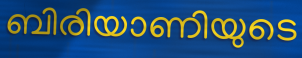
ബിരിയാണിയുടെ